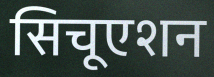
सिचूएशन